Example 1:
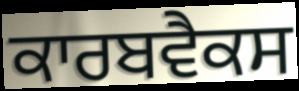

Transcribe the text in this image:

ਕਾਰਬਵੈਕਸ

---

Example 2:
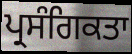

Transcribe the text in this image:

ਪ੍ਰਸੰਗਿਕਤਾ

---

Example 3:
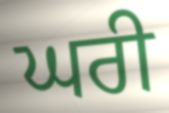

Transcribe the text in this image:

ਘਰੀ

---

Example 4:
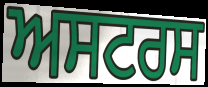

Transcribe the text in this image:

ਅਸਟਰਸ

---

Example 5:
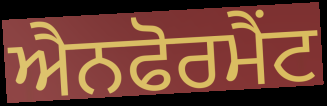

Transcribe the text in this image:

ਐਨਫੋਰਮੈਂਟ